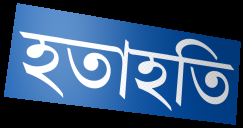
হতাহতি